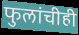
फुलांचीही